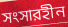
সংসারহীন